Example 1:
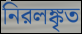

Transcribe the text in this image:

নিরলঙ্কৃত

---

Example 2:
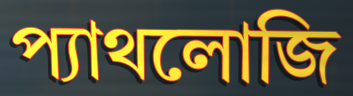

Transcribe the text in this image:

প্যাথলোজি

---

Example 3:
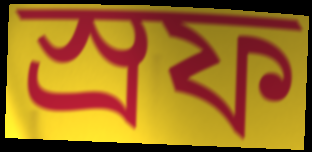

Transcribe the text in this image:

স্রফ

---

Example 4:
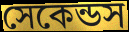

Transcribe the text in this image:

সেকেন্ডস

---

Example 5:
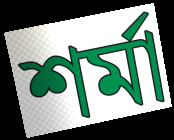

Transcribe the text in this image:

শর্মা